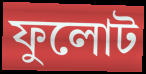
ফুলোট